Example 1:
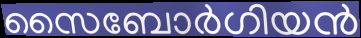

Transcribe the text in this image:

സൈബോർഗിയൻ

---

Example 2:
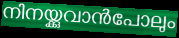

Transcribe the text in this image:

നിനയ്ക്കുവാൻപോലും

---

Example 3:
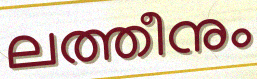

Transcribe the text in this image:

ലത്തീനും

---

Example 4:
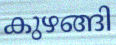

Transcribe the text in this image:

കുഴങ്ങി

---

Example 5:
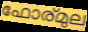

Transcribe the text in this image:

ഫോര്മുല